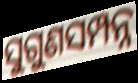
ସୁଗୁଣସମ୍ପନ୍ନ